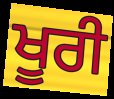
ਖੂਰੀ